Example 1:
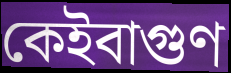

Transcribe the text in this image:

কেইবাগুণ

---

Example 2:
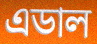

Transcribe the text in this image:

এডাল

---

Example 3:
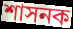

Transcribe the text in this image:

শাসনক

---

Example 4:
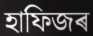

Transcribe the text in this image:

হাফিজৰ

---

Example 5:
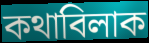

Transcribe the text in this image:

কথাবিলাক